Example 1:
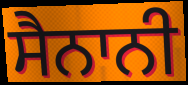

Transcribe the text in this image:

ਸੈਨਾਨੀ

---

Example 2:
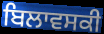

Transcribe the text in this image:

ਬਿਲਾਵਸਕੀ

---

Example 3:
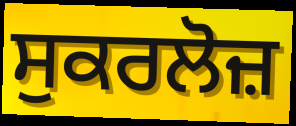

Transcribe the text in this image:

ਸੁਕਰਲੋਜ਼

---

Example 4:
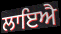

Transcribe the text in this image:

ਲਾਇਐ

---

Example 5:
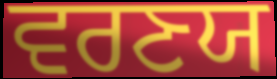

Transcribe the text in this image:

ਵਰਣਯ